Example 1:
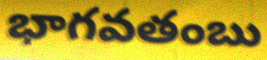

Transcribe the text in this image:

భాగవతంబు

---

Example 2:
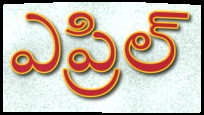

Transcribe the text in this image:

ఎప్రిల్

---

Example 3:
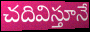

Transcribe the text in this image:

చదివిస్తూనే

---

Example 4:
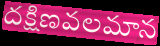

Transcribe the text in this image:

దక్షిణవలమాన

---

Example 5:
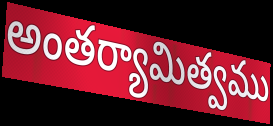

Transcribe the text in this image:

అంతర్యామిత్వము